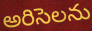
అరిసెలను